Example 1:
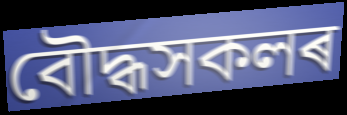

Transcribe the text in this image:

বৌদ্ধসকলৰ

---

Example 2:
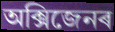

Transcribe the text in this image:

অক্সিজেনৰ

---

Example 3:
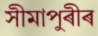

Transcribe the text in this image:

সীমাপুৰীৰ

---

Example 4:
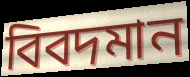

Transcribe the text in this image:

বিবদমান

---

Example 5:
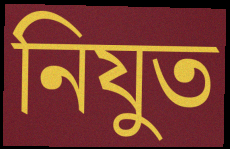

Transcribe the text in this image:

নিযুত